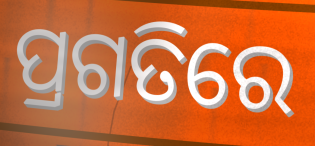
ପ୍ରଗତିରେ